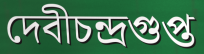
দেবীচন্দ্রগুপ্ত